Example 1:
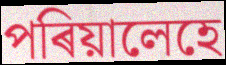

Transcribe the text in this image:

পৰিয়ালেহে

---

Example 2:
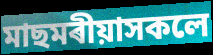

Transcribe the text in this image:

মাছমৰীয়াসকলে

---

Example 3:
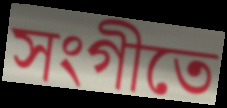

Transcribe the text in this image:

সংগীতে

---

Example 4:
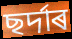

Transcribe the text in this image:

ছৰ্দাৰ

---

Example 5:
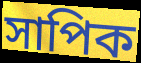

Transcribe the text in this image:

সাপিক